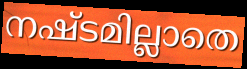
നഷ്ടമില്ലാതെ